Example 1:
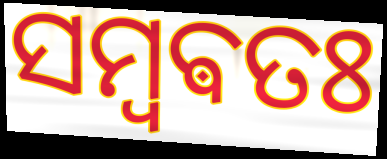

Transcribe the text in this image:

ସମ୍ବଵତଃ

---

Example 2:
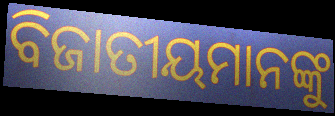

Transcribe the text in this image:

ବିଜାତୀୟମାନଙ୍କୁ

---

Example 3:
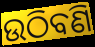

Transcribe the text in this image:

ଉଠିବଣି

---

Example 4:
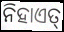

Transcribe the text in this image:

ନିହାଏତ୍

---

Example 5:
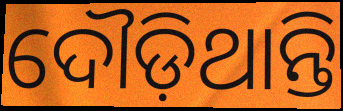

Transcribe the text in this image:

ଦୌଡ଼ିଥାନ୍ତି